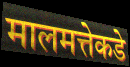
मालमत्तेकडे